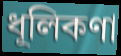
ধূলিকণা